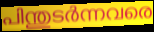
പിന്തുടർന്നവരെ